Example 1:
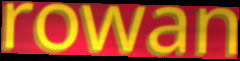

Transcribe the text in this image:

rowan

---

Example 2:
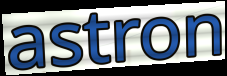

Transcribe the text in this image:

astron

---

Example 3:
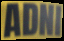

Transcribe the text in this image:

ADNI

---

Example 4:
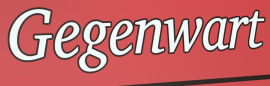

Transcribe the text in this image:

Gegenwart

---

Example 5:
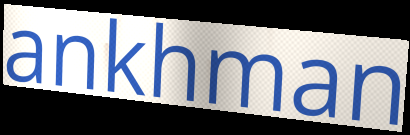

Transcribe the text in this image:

ankhman